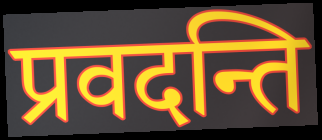
प्रवदन्ति